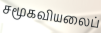
சமூகவியலைப்